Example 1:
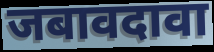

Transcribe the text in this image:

जबावदावा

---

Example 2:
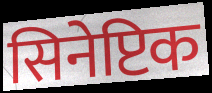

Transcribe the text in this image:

सिनेप्टिक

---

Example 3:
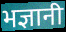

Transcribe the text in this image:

भज्ञानी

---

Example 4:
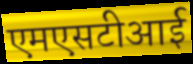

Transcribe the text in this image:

एमएसटीआई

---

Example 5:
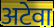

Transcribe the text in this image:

अटेवा